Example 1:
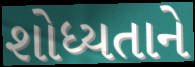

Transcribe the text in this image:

શોધ્યતાને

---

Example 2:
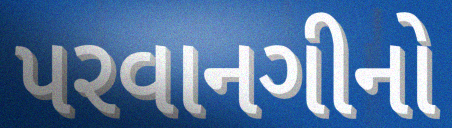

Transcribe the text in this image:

પરવાનગીનો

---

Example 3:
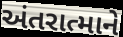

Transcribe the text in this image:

અંતરાત્માને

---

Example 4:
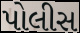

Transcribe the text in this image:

પોલીસ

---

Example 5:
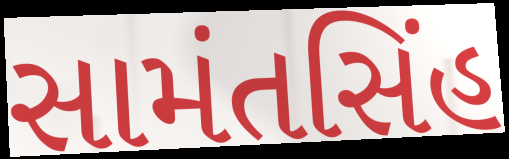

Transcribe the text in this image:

સામંતસિંહ